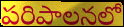
పరిపాలనలో